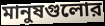
মানুষগুলোর